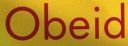
Obeid